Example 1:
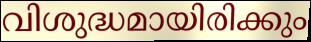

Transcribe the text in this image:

വിശുദ്ധമായിരിക്കും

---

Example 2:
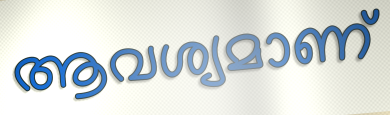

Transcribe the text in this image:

ആവശ്യമാണ്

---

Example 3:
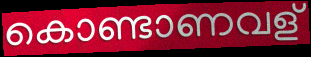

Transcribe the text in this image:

കൊണ്ടാണവള്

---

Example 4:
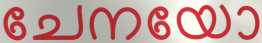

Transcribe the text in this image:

ചേനയോ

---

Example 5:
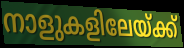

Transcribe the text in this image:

നാളുകളിലേയ്ക്ക്